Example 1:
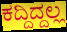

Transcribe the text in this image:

ಕದ್ದಿದ್ದಲ್ಲ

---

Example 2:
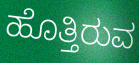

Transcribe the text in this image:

ಹೊತ್ತಿರುವ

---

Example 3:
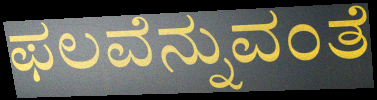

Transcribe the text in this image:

ಫಲವೆನ್ನುವಂತೆ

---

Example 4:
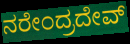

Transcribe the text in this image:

ನರೇಂದ್ರದೇವ್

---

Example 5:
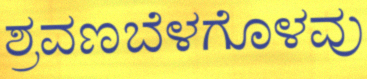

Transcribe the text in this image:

ಶ್ರವಣಬೆಳಗೊಳವು